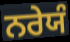
ਨਰੇਯੰ